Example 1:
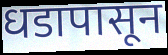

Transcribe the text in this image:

धडापासून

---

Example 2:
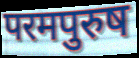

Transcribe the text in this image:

परमपुरुष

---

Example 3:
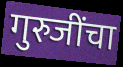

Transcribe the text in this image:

गुरुजींचा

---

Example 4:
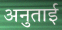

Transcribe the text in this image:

अनुताई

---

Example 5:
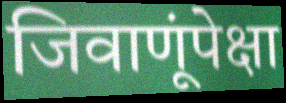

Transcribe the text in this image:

जिवाणूंपेक्षा